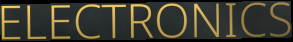
ELECTRONICS